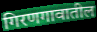
गिरणगावातील